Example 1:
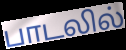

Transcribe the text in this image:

பாடலில்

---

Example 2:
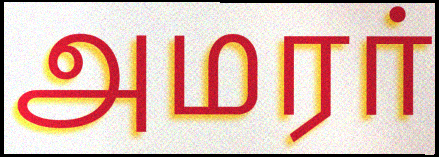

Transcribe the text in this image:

அமரர்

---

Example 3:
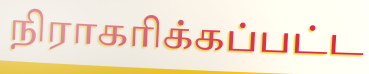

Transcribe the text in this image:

நிராகரிக்கப்பட்ட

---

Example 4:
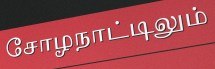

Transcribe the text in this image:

சோழநாட்டிலும்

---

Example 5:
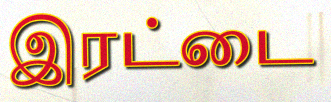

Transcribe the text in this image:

இரட்டை